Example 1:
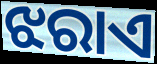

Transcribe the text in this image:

ଝରାଏ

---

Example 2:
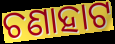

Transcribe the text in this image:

ଚଣାହାଟ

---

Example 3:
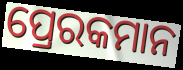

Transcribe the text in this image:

ପ୍ରେରକମାନ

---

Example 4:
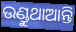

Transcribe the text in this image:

ଉଣ୍ଡୁଥାଆନ୍ତି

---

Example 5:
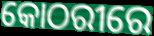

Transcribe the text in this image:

କୋଠରୀରେ